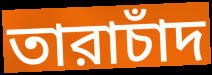
তারাচাঁদ